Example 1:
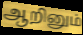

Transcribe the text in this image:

ஆறினும்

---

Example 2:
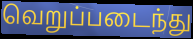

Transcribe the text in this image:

வெறுப்படைந்து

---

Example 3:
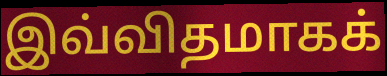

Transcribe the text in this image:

இவ்விதமாகக்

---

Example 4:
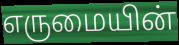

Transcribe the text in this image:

எருமையின்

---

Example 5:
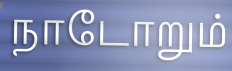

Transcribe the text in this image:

நாடோறும்